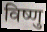
विष्‍णु